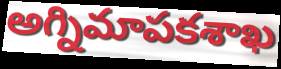
అగ్నిమాపకశాఖ